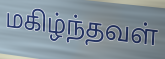
மகிழ்ந்தவள்